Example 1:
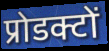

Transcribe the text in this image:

प्रोडक्टों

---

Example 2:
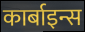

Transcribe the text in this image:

कार्बाइन्स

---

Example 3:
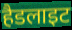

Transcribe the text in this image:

हैडलाइट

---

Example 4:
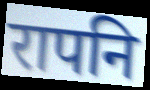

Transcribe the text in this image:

रापनि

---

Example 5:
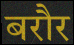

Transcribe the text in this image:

बरौर